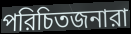
পরিচিতজনারা